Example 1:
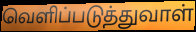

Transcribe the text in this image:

வெளிப்படுத்துவாள்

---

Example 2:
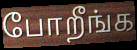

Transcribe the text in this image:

போறீங்க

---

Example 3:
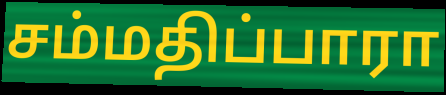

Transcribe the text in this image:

சம்மதிப்பாரா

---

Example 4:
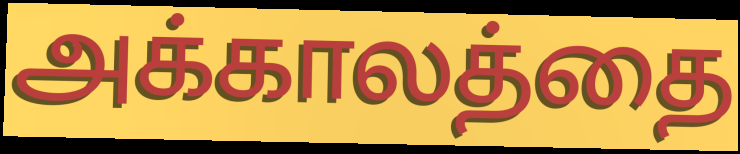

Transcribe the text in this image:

அக்காலத்தை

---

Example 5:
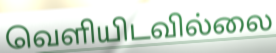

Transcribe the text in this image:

வெளியிடவில்லை